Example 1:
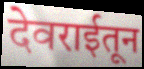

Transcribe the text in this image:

देवराईतून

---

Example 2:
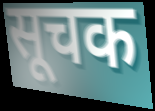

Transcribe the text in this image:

सूचक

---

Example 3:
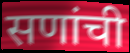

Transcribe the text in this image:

सणांची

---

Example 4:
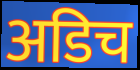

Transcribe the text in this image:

अडिच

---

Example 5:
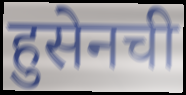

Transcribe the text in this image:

हुसेनची